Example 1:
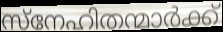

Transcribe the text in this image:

സ്നേഹിതന്മാർക്ക്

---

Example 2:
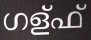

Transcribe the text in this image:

ഗള്ഫ്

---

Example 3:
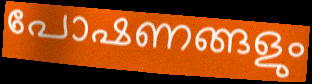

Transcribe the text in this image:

പോഷണങ്ങളും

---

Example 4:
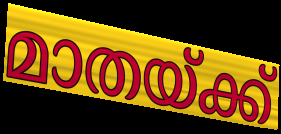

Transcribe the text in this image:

മാതയ്ക്ക്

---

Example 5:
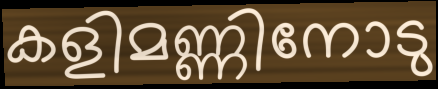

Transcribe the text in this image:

കളിമണ്ണിനോടു